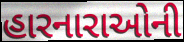
હારનારાઓની